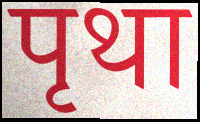
पृथा